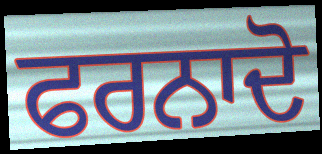
ਫਰਨਾਦੋ